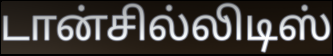
டான்சில்லிடிஸ்